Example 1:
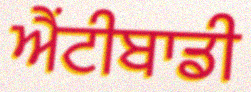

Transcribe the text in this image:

ਐਂਟੀਬਾਡੀ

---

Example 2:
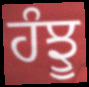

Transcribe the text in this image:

ਹੰਝੂ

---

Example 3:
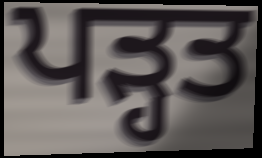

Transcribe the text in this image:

ਪਡ਼੍ਹਤ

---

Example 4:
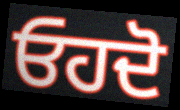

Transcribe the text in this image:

ਓਹਦੋ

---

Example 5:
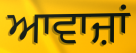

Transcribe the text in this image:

ਆਵਾਜ਼ਾਂ